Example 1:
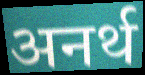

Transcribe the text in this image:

अनर्थ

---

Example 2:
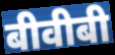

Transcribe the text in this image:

बीवीबी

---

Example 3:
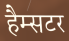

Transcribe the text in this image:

हैम्सटर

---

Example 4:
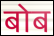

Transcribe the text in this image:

बोब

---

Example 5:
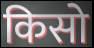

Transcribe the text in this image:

किसो